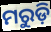
ମରୁଡ଼ି